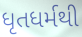
ધૃતધર્મથી